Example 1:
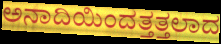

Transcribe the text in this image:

ಅನಾದಿಯಿಂದತ್ತತ್ತಲಾದ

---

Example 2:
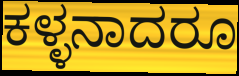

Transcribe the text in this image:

ಕಳ್ಳನಾದರೂ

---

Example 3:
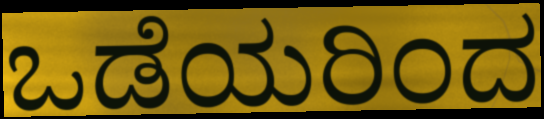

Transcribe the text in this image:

ಒಡೆಯರಿಂದ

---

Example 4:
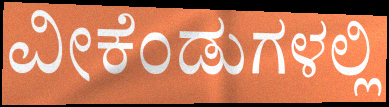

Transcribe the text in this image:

ವೀಕೆಂಡುಗಳಲ್ಲಿ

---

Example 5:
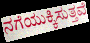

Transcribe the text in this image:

ನಗೆಯುಕ್ಕಿಸುತ್ತವೆ